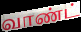
வாண்ட்